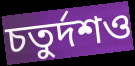
চতুর্দশও